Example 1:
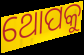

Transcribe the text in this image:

ଥୋପକୁ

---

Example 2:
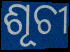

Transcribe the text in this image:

ଶୂଚୀ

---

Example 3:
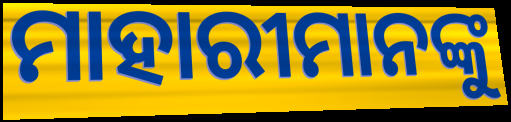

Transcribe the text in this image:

ମାହାରୀମାନଙ୍କୁ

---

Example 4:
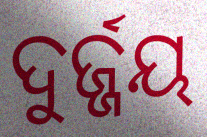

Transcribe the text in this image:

ଦୁର୍ଜ୍ଜୟ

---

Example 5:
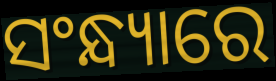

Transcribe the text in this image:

ସଂନ୍ଧ୍ୟାରେ